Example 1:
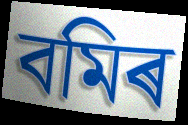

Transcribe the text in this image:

বমিৰ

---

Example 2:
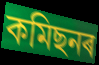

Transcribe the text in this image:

কমিছনৰ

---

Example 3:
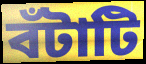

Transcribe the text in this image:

বঁটাটি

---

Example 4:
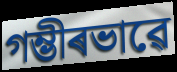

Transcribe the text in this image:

গম্ভীৰভাৱে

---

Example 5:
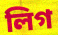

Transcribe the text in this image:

লিগ